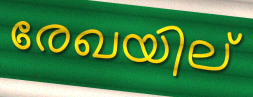
രേഖയില്